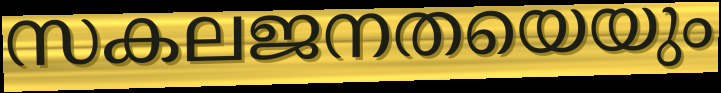
സകലജനതയെയും